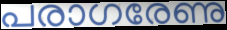
പരാഗരേണു